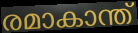
രമാകാന്ത്